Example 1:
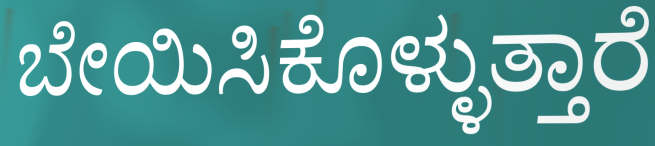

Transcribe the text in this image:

ಬೇಯಿಸಿಕೊಳ್ಳುತ್ತಾರೆ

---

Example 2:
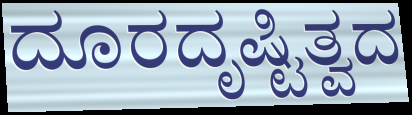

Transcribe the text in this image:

ದೂರದೃಷ್ಟಿತ್ವದ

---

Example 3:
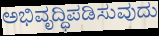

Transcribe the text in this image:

ಅಭಿವೃದ್ಧಿಪಡಿಸುವುದು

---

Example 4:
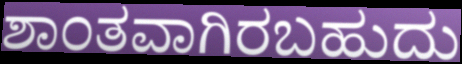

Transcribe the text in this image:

ಶಾಂತವಾಗಿರಬಹುದು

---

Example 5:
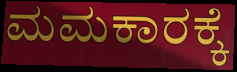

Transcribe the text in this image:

ಮಮಕಾರಕ್ಕೆ